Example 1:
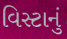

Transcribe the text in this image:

વિસ્ટાનું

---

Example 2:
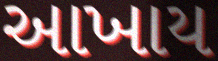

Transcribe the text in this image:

આખાય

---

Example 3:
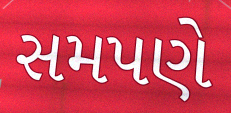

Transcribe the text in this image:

સમપણે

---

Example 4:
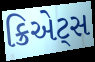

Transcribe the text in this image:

ક્રિએટ્સ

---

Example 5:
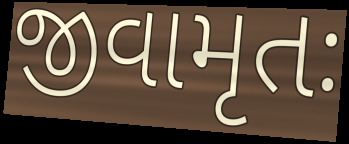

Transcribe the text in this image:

જીવામૃતઃ